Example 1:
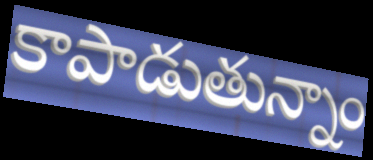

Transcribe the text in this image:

కాపాడుతున్నాం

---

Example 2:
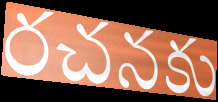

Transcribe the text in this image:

రచనకు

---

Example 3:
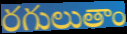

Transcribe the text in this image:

రగులుతాం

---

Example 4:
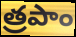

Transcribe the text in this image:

త్రపాం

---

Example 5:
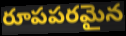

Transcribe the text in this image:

రూపపరమైన